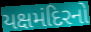
યક્ષમંદિરનો